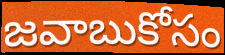
జవాబుకోసం